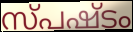
സ്പഷ്ടം